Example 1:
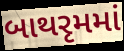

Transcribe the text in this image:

બાથરૃમમાં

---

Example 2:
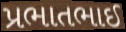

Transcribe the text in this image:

પ્રભાતભાઈ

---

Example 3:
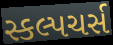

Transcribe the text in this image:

સ્કલ્પચર્સ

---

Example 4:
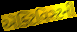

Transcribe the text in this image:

ઍક્ટિવિસ્ટની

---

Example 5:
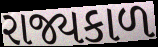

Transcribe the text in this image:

રાજ્યકાળ